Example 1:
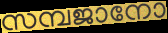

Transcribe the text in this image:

സമ്പജാനോ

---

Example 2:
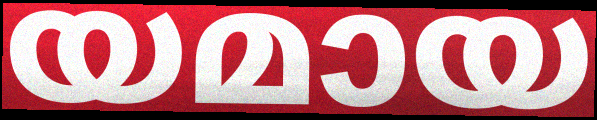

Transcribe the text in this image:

യമായ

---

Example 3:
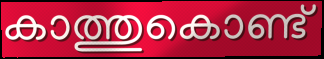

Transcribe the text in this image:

കാത്തുകൊണ്ട്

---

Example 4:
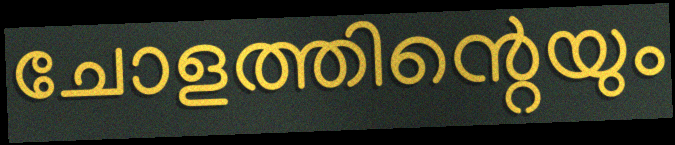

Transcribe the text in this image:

ചോളത്തിന്റെയും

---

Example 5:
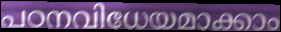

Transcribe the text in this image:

പഠനവിധേയമാക്കാം